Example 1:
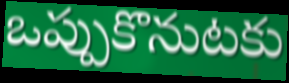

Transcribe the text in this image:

ఒప్పుకొనుటకు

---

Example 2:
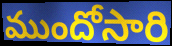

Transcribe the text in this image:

ముందోసారి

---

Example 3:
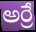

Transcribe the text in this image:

అర్రే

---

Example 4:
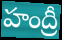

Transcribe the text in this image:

హంద్రీ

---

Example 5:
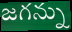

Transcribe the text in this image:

జగన్ను